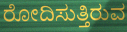
ರೋದಿಸುತ್ತಿರುವ